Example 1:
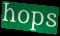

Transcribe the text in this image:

hops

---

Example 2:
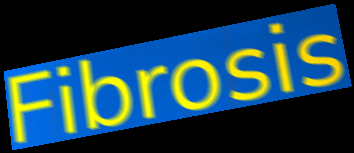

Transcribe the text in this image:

Fibrosis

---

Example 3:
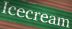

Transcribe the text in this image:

Icecream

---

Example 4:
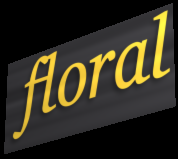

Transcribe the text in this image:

floral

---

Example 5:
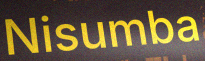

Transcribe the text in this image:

Nisumba